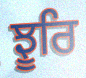
ਝੂਰਿ